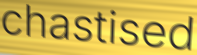
chastised